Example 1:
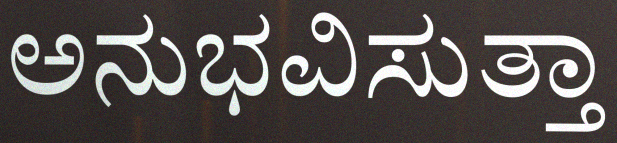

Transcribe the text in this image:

ಅನುಭವಿಸುತ್ತಾ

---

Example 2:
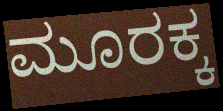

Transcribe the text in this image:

ಮೂರಕ್ಕ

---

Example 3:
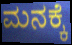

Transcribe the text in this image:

ಮನಕ್ಕೆ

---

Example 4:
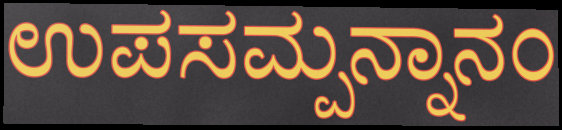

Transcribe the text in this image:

ಉಪಸಮ್ಪನ್ನಾನಂ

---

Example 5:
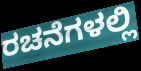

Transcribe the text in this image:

ರಚನೆಗಳಲ್ಲಿ